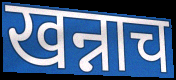
खन्नाच